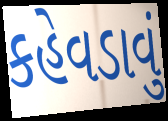
કહેવડાવું